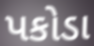
પકોડા